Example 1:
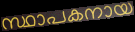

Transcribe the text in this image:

സ്ഥാപകനായ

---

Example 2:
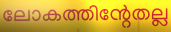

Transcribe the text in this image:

ലോകത്തിന്റേതല്ല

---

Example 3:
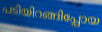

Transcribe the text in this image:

പടിയിറങ്ങിപ്പോയ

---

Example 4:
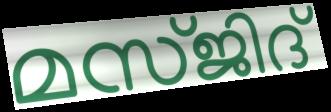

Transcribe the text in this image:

മസ്ജിദ്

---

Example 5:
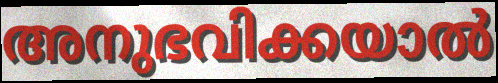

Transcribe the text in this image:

അനുഭവിക്കയാൽ